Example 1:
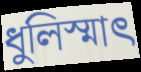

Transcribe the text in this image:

ধুলিস্মাৎ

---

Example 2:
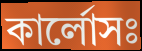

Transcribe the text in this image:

কার্লোসঃ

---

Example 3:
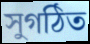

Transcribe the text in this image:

সুগঠিত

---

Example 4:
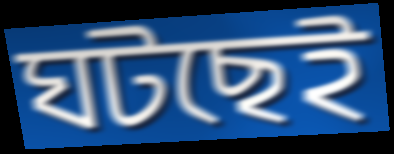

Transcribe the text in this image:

ঘটছেই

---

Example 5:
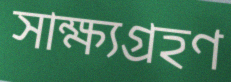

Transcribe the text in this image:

সাক্ষ্যগ্রহণ